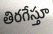
తిరగేస్తూ